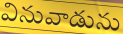
వినువాడును